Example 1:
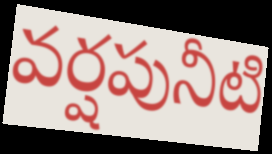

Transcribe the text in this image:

వర్షపునీటి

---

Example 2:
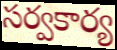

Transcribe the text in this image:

సర్వకార్య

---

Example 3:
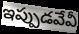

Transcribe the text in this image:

ఇప్పుడవేవీ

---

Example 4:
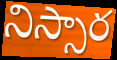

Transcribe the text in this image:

నిస్సార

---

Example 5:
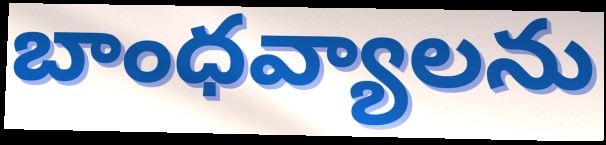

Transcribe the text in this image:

బాంధవ్యాలను